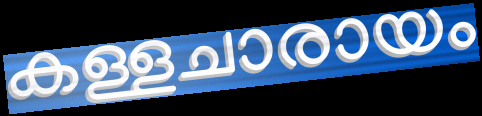
കള്ളചാരായം